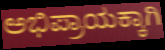
ಅಭಿಪ್ರಾಯಕ್ಕಾಗಿ